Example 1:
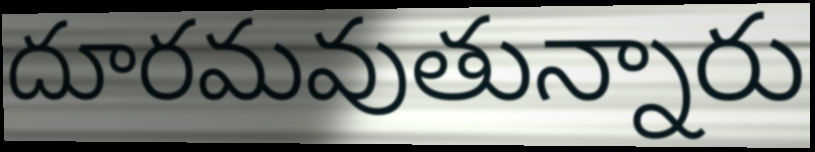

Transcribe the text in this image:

దూరమవుతున్నారు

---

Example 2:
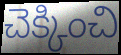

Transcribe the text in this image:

చెక్కించి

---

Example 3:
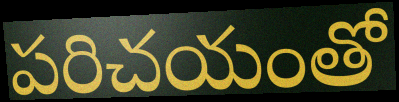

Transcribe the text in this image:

పరిచయంతో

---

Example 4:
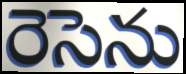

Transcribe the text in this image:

రెసెను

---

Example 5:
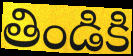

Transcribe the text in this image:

తిండికి